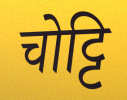
चोट्टि